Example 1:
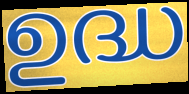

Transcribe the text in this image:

ഉദ്ധ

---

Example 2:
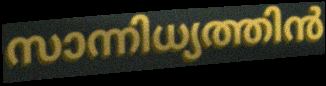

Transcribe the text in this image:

സാന്നിധ്യത്തിൻ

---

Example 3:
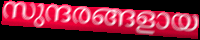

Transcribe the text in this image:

സുന്ദരങ്ങളായ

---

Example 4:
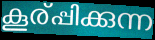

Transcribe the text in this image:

കൂര്പ്പിക്കുന്ന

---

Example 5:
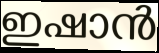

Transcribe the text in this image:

ഇഷാൻ